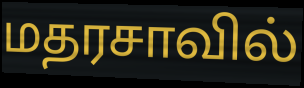
மதரசாவில்